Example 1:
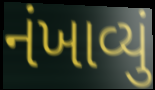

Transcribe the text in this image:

નંખાવ્યું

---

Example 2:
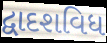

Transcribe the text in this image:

દ્વાદશવિધ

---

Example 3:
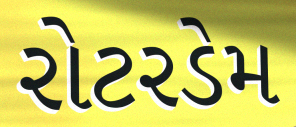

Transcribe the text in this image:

રોટરડેમ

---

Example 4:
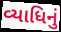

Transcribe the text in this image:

વ્યાધિનું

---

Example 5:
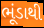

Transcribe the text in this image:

ભૂંડાથી